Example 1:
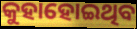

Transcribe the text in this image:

କୁହାହୋଇଥିବ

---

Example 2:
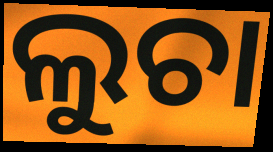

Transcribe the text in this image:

ଲୁଚା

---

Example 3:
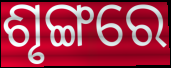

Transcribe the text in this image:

ଶୃଙ୍ଗରେ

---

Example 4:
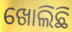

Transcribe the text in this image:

ଖୋଲିଛି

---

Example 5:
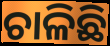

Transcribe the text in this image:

ଚାଳିଛି